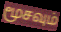
மூசவும்